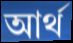
আর্থ